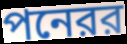
পনেরর